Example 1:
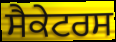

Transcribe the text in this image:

ਸੈਕੇਟਰਸ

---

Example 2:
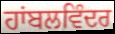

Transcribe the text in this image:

ਹਾਂਬਲਵਿੰਦਰ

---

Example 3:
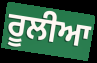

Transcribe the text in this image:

ਰੂਲੀਆ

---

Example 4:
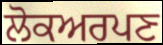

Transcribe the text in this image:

ਲੋਕਅਰਪਣ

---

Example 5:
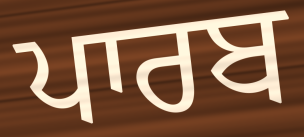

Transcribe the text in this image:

ਪਾਰਬ